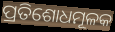
ପ୍ରତିଶୋଧମୂଳକ